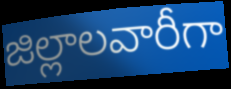
జిల్లాలవారీగా